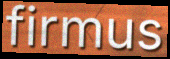
firmus